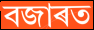
বজাৰত